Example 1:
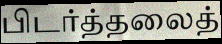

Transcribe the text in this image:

பிடர்த்தலைத்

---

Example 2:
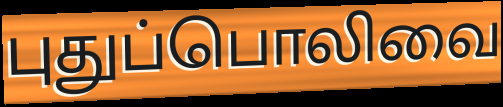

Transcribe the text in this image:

புதுப்பொலிவை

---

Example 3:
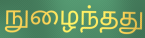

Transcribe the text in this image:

நுழைந்தது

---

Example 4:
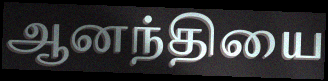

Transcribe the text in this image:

ஆனந்தியை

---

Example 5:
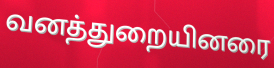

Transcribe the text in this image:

வனத்துறையினரை